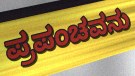
ಪ್ರಪಂಚವನು